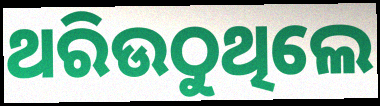
ଥରିଉଠୁଥିଲେ